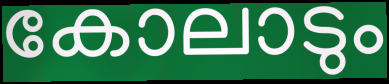
കോലാടും